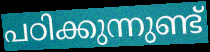
പഠിക്കുന്നുണ്ട്